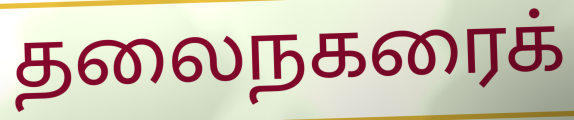
தலைநகரைக்